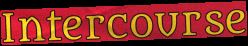
Intercourse